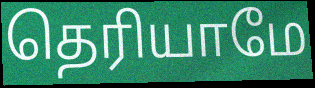
தெரியாமே